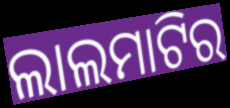
ଲାଲମାଟିର